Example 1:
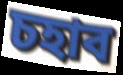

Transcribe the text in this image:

চহাব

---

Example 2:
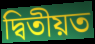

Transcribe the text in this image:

দ্বিতীয়ত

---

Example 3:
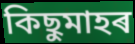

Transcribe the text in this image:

কিছুমাহৰ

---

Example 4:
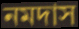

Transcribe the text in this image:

নমদাস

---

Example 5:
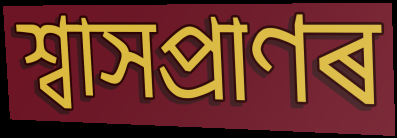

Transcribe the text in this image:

শ্বাসপ্ৰাণৰ